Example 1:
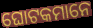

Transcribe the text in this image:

ଘୋଟକମାନେ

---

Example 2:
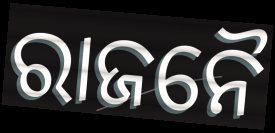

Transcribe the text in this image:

ରାଜନୈ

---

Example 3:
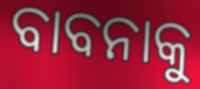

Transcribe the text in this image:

ବାବନାକୁ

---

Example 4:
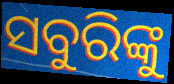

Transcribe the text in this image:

ସବୁରିଙ୍କୁ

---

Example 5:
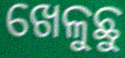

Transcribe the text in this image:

ଖେଳୁଛୁ